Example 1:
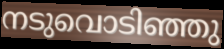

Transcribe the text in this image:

നടുവൊടിഞ്ഞു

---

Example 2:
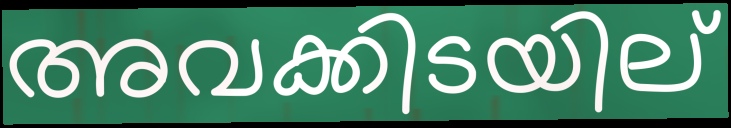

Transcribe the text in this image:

അവക്കിടയില്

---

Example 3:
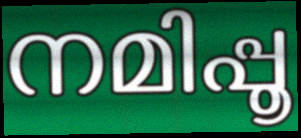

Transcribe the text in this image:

നമിപ്പൂ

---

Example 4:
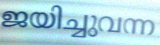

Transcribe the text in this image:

ജയിച്ചുവന്ന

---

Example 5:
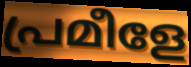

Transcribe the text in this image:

പ്രമീളേ